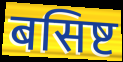
बसिष्ट